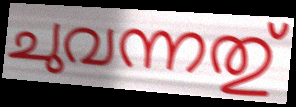
ചുവന്നതു്